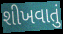
શીખવાતું